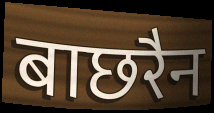
बाछरैन